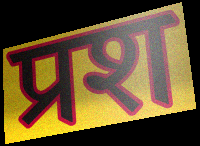
प्रश